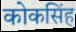
कोकसिंह